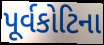
પૂર્વકોટિના